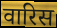
वारिस